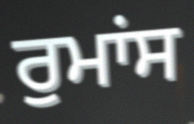
ਰੁਮਾਂਸ